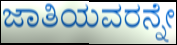
ಜಾತಿಯವರನ್ನೇ